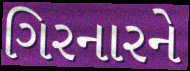
ગિરનારને